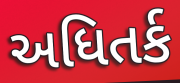
અધિતર્ક